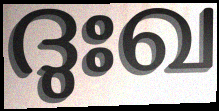
ദുഃഖ